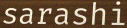
sarashi